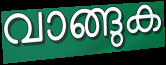
വാങ്ങുക